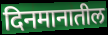
दिनमानातील